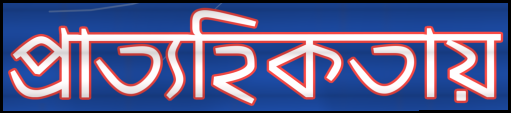
প্রাত্যহিকতায়